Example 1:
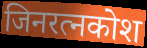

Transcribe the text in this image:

जिनरत्नकोश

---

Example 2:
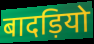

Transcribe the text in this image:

बादड़ियो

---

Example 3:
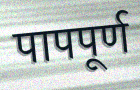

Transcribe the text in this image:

पापपूर्ण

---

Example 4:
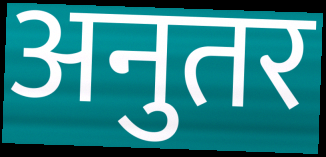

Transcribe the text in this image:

अनुतर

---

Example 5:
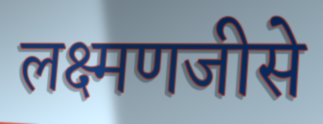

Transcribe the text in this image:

लक्ष्मणजीसे